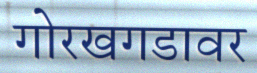
गोरखगडावर